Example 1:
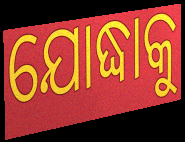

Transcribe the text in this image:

ଯୋଦ୍ଧାକୁ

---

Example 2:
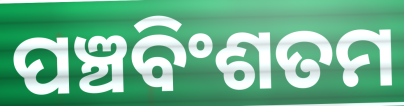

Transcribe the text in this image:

ପଞ୍ଚବିଂଶତମ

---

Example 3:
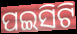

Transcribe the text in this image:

ପଇସିଟି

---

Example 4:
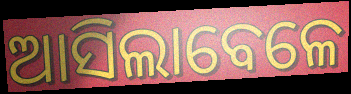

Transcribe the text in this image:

ଆସିଲାବେଳେ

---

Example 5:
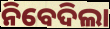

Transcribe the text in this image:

ନିବେଦିଲା